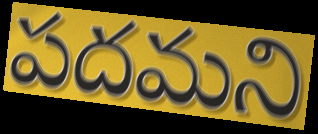
పదమని